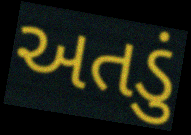
અતડું